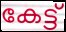
കേട്ട്